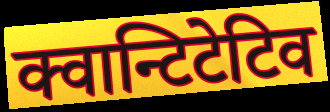
क्वान्टिटेटिव